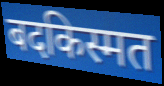
बदकिस्‍मत